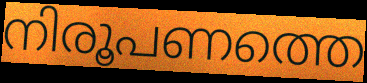
നിരൂപണത്തെ